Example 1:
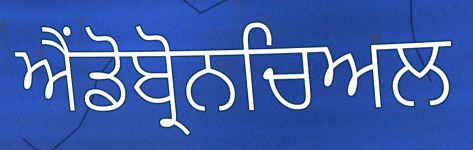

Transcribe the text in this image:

ਐਂਡੋਬ੍ਰੋਨਚਿਅਲ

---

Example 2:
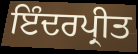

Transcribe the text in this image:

ਇੰਦਰਪ੍ਰੀਤ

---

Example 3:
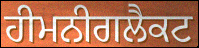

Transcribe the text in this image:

ਹੀਮਨੀਗਲੈਕਟ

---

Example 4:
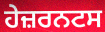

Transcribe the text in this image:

ਹੇਜ਼ਰਨਟਸ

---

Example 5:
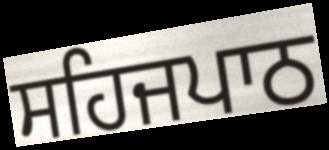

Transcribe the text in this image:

ਸਹਿਜਪਾਠ